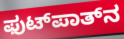
ಫುಟ್‌ಪಾತ್‌ನ